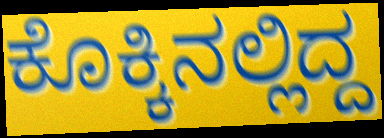
ಕೊಕ್ಕಿನಲ್ಲಿದ್ದ